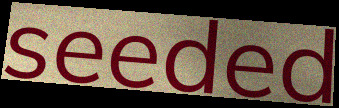
seeded